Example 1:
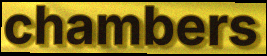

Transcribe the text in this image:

chambers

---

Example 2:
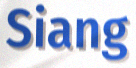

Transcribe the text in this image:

Siang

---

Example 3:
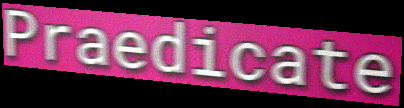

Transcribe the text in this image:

Praedicate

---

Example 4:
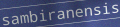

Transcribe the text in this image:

sambiranensis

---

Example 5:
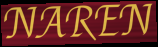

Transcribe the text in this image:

NAREN